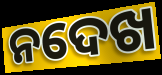
ନଦେଖ